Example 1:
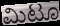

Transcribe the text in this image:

ಮಿಟೂ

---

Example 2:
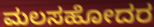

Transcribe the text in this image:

ಮಲಸಹೋದರ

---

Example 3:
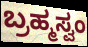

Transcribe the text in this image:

ಬ್ರಹ್ಮಸ್ವಂ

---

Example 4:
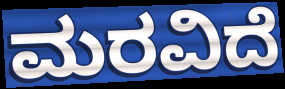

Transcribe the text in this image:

ಮರವಿದೆ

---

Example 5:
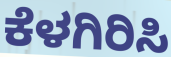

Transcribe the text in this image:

ಕೆಳಗಿರಿಸಿ